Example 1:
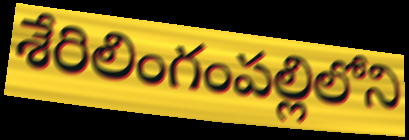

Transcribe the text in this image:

శేరిలింగంపల్లిలోని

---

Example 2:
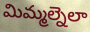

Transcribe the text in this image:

మిమ్మల్నెలా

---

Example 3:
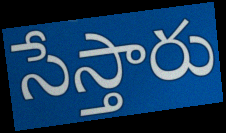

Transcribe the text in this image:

సేస్తారు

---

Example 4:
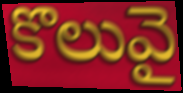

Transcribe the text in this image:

కొలువై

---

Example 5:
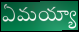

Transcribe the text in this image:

ఏమయ్యా